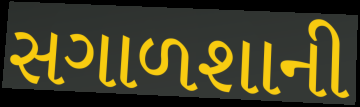
સગાળશાની